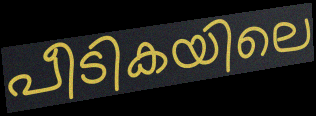
പീടികയിലെ